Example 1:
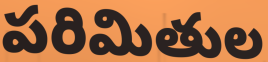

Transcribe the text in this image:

పరిమితుల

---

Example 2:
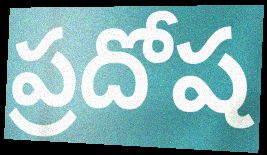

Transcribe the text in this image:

ప్రదోష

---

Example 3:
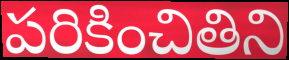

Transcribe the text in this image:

పరికించితిని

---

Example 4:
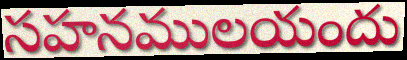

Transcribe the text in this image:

సహనములయందు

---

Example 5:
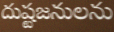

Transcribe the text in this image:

దుష్టజనులను